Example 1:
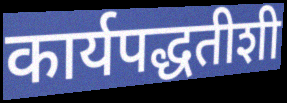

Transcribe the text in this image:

कार्यपद्धतीशी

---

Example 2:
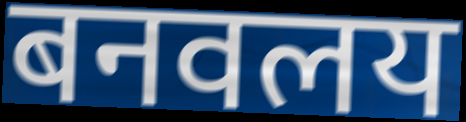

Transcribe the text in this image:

बनवलय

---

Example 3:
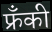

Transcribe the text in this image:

फ्रँकी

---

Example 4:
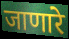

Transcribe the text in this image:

जाणारे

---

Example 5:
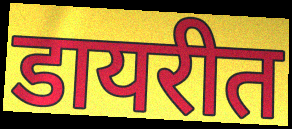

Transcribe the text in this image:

डायरीत